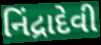
નિંદ્રાદેવી